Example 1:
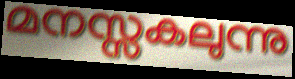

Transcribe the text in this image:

മനസ്സകലുന്നു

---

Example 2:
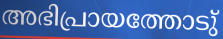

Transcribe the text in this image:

അഭിപ്രായത്തോടു്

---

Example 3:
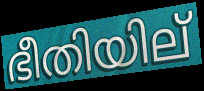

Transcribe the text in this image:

ഭീതിയില്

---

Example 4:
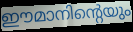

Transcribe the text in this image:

ഈമാനിന്റെയും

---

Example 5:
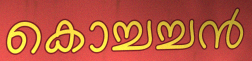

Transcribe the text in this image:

കൊച്ചച്ചൻ